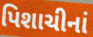
પિશાચીનાં